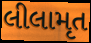
લીલામૃત